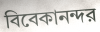
বিবেকানন্দর